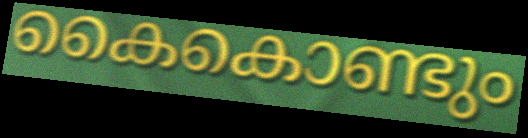
കൈകൊണ്ടും